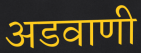
अडवाणी